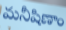
మనీషిణాం